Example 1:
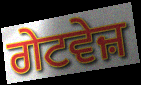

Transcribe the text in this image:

ਗੇਟਵੇਜ਼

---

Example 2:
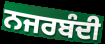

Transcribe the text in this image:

ਨਜਰਬੰਦੀ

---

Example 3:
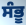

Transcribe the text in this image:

ਸੰਭੂ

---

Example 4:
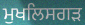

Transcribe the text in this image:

ਮੁਖਲਿਸਗੜ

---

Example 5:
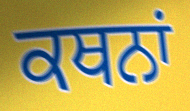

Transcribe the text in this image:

ਕਥਨਾਂ